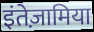
इंतेज़ामिया